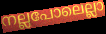
നല്ലപോലെല്ലാ